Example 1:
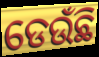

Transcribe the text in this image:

ଡେଉଁଛି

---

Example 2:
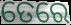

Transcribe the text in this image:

ତେରେ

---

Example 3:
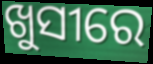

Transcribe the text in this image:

ଖୁସୀରେ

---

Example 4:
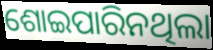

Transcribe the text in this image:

ଶୋଇପାରିନଥିଲା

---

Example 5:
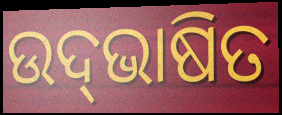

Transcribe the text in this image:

ଉଦ୍‍ଭାଷିତ